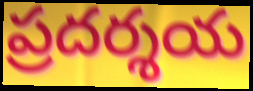
ప్రదర్శయ